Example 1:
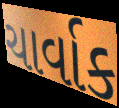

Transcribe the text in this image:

ચાર્વાક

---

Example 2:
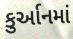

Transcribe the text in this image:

કુર્આનમાં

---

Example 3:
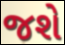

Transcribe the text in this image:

જશે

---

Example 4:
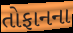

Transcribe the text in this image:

તોફાનના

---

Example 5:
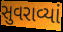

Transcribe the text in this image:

સુવરાવ્યાં